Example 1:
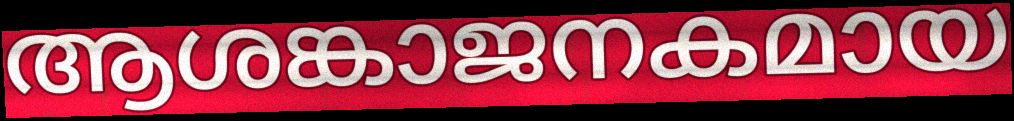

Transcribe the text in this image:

ആശങ്കാജനകമായ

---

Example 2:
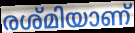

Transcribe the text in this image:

രശ്മിയാണ്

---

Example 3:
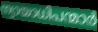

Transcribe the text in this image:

ന്യായാധിപന്മാർ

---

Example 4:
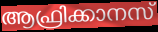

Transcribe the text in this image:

ആഫ്രിക്കാനസ്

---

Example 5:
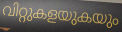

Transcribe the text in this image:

വിറ്റുകളയുകയും